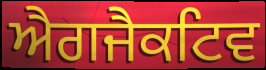
ਐਗਜੈਕਟਿਵ